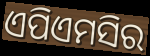
ଏପିଏମସିର